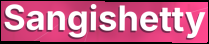
Sangishetty